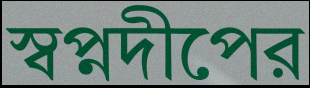
স্বপ্নদীপের